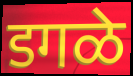
डगळे